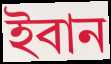
ইবান